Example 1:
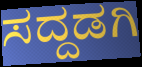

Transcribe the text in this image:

ಸದ್ದಡಗಿ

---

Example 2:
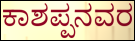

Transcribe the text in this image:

ಕಾಶಪ್ಪನವರ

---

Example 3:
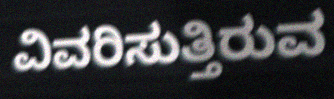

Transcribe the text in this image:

ವಿವರಿಸುತ್ತಿರುವ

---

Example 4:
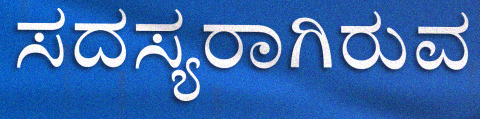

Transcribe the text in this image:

ಸದಸ್ಯರಾಗಿರುವ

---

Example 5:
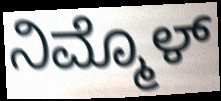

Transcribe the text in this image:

ನಿಮ್ಮೊಳ್